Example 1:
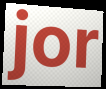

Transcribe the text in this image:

jor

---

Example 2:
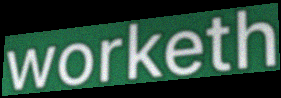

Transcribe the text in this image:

worketh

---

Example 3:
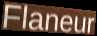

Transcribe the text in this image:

Flaneur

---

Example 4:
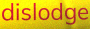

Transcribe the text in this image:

dislodge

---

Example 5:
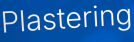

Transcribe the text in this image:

Plastering